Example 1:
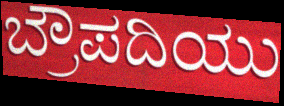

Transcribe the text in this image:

ಬ್ರೌಪದಿಯು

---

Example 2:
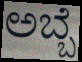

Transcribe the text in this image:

ಅಬ್ಬೆ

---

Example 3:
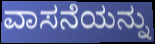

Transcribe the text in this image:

ವಾಸನೆಯನ್ನು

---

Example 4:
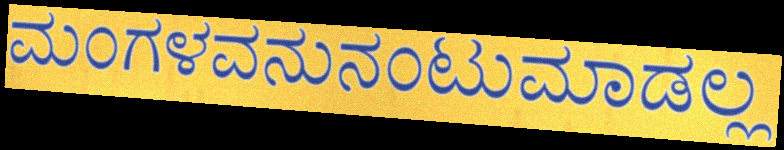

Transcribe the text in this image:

ಮಂಗಳವನುನಂಟುಮಾಡಲ್ಲ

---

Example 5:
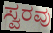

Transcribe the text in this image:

ಸ್ವರವು